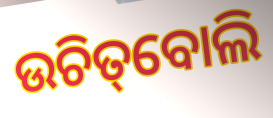
ଉଚିତ୍‌ବୋଲି